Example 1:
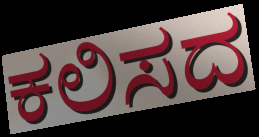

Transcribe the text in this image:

ಕಲಿಸದ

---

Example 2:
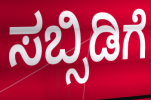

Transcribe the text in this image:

ಸಬ್ಸಿಡಿಗೆ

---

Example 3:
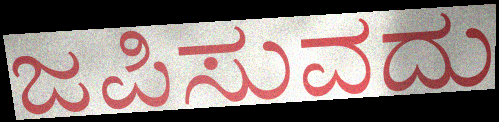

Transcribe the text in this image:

ಜಪಿಸುವದು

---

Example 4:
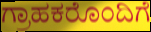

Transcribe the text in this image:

ಗ್ರಾಹಕರೊಂದಿಗೆ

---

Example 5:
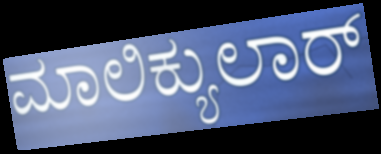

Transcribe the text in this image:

ಮಾಲಿಕ್ಯುಲಾರ್